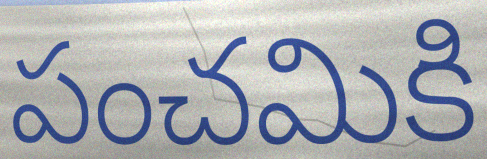
పంచమికి